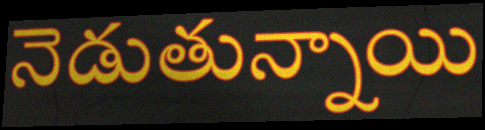
నెడుతున్నాయి